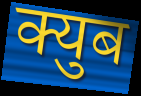
क्युब